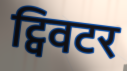
ट्विवटर